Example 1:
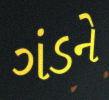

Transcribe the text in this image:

ગંડને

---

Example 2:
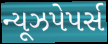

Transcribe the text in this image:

ન્યૂઝપેપર્સ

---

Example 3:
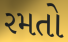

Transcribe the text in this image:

રમતો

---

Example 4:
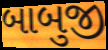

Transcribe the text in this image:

બાબુજી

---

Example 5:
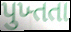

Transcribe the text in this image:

પુખ્તતા